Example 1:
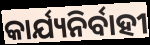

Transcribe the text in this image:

କାର୍ଯ୍ୟନିର୍ବାହୀ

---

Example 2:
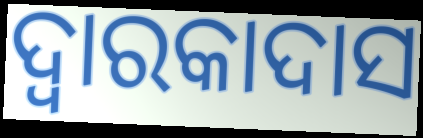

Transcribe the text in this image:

ଦ୍ୱାରକାଦାସ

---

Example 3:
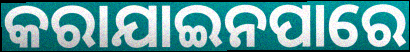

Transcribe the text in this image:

କରାଯାଇନପାରେ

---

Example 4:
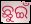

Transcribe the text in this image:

ଛୁଇଁ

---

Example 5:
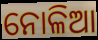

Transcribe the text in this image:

ନୋଳିଆ